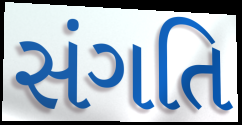
સંગતિ